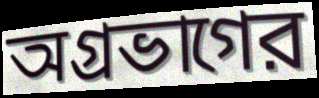
অগ্রভাগের